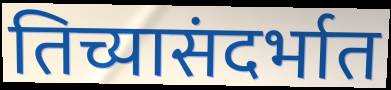
तिच्यासंदर्भात